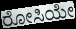
ರೋಸಿಯೇ